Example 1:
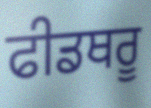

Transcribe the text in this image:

ਫੀਡਥਰੂ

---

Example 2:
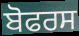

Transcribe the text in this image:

ਬੋਫਰਸ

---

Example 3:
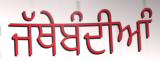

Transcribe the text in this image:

ਜੱਥੇਬੰਦੀਆੰ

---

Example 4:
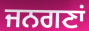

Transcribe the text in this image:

ਜਨਗਣਾਂ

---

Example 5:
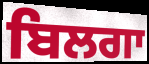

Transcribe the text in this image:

ਬਿਲਗਾ